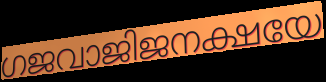
ഗജവാജിജനക്ഷയേ